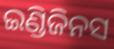
ଇଣ୍ଡିଜିନସ